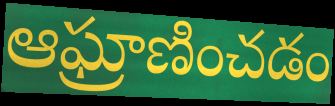
ఆఘ్రాణించడం